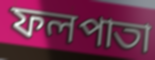
ফলপাতা